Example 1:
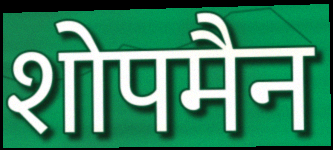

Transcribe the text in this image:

शोपमैन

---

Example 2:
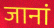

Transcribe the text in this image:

जानां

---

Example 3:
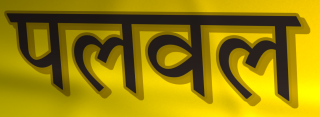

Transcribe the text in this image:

पलवल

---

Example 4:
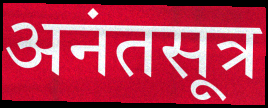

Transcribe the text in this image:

अनंतसूत्र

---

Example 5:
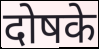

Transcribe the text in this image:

दोषके